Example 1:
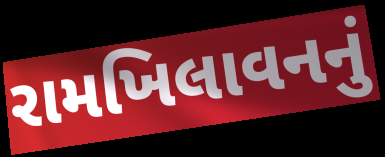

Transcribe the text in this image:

રામખિલાવનનું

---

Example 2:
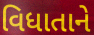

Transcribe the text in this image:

વિધાતાને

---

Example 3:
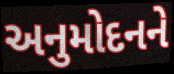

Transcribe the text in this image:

અનુમોદનને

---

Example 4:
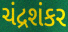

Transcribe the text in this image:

ચંદ્રશંકર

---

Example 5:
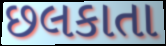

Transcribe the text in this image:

છલકાતા